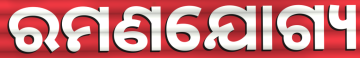
ରମଣଯୋଗ୍ୟ